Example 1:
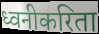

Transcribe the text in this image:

ध्वनीकरिता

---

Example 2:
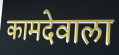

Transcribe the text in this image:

कामदेवाला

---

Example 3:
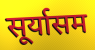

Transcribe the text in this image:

सूर्यासम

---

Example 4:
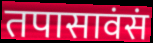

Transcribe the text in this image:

तपासावंसं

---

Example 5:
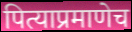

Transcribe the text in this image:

पित्याप्रमाणेच